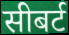
सीबर्ट